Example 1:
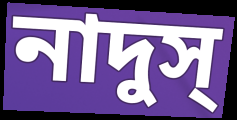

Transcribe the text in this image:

নাদুস্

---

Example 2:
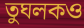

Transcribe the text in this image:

তুঘলকও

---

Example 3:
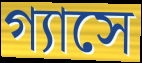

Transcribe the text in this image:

গ্যাসে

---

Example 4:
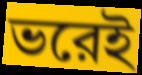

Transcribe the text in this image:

ভরেই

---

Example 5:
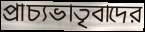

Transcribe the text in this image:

প্রাচ্যভাতৃবাদের